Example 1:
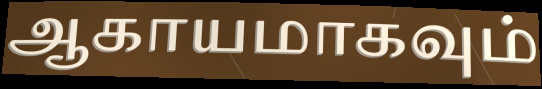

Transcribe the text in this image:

ஆகாயமாகவும்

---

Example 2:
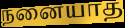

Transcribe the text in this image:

நனையாத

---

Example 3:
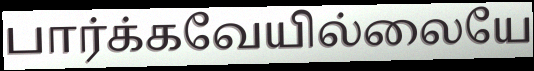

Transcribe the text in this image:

பார்க்கவேயில்லையே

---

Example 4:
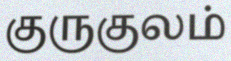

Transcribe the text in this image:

குருகுலம்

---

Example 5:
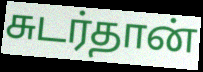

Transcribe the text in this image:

சுடர்தான்